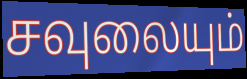
சவுலையும்